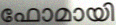
ഫോമായി